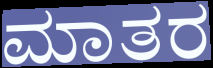
ಮಾತರ